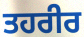
ਤਹਰੀਰ